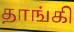
தாங்கி